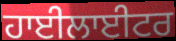
ਹਾਈਲਾਈਟਰ